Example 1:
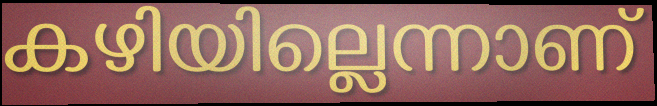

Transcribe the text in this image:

കഴിയില്ലെന്നാണ്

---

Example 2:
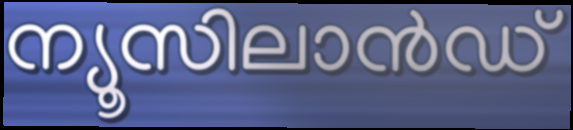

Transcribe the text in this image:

ന്യൂസിലാൻഡ്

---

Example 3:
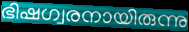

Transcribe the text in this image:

ഭിഷഗ്വരനായിരുന്നു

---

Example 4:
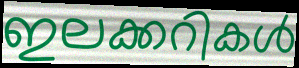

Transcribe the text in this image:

ഇലക്കറികൾ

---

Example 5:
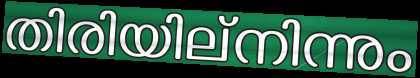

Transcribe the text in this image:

തിരിയില്നിന്നും